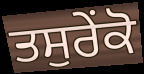
ਤਸੁਰੇਂਕੋ